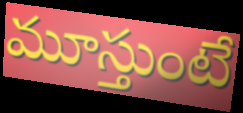
మూస్తుంటే